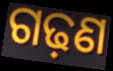
ଗଢ଼ଣ